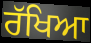
ਰੱਖਿਆ